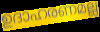
ഉദാഹരണമല്ല